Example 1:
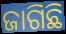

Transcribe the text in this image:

ଜାଗିଛି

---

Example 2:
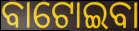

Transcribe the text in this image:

ବାଟୋଇବା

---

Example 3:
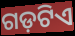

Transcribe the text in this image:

ଗଡ଼ଟିଏ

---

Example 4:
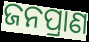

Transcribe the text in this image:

ଜନପ୍ରାଣ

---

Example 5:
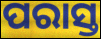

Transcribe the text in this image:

ପରାସ୍ତ